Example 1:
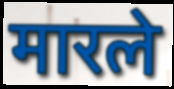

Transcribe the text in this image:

मारले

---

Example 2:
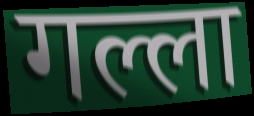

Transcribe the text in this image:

गल्ला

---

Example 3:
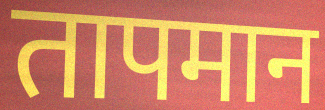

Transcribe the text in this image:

तापमान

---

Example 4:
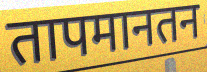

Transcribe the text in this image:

तापमानतन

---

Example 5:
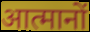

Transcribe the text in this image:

आत्मानों